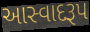
આસ્વાદરૂપ